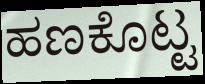
ಹಣಕೊಟ್ಟ